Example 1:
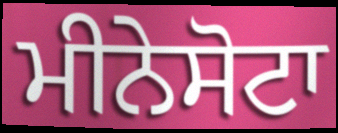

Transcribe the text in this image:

ਮੀਨੇਸੋਟਾ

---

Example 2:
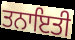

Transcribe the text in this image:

ਤਨਾਇਤੀ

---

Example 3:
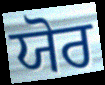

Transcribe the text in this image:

ਯੋਰ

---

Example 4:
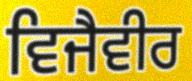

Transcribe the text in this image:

ਵਿਜੈਵੀਰ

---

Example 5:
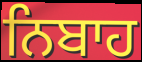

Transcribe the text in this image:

ਨਿਬਾਹ